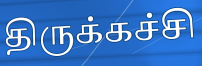
திருக்கச்சி